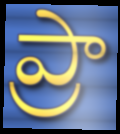
ప్రా